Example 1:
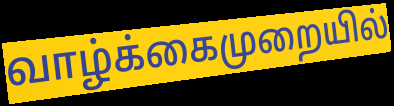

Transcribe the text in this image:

வாழ்க்கைமுறையில்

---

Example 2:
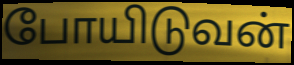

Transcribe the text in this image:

போயிடுவன்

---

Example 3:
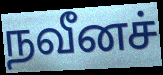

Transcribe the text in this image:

நவீனச்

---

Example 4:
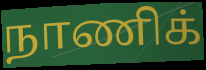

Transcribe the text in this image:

நாணிக்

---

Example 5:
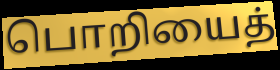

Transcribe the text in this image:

பொறியைத்